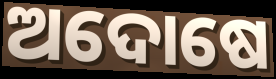
ଅଦୋଷେ